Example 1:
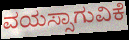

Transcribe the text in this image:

ವಯಸ್ಸಾಗುವಿಕೆ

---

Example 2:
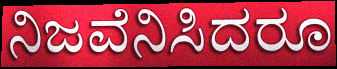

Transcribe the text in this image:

ನಿಜವೆನಿಸಿದರೂ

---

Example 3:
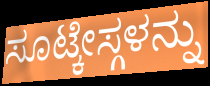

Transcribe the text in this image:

ಸೂಟ್ಕೇಸ್ಗಳನ್ನು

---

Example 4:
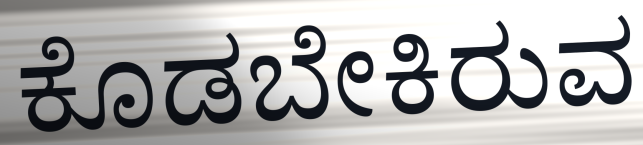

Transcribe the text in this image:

ಕೊಡಬೇಕಿರುವ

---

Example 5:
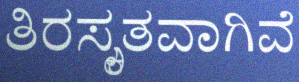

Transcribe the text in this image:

ತಿರಸ್ಕೃತವಾಗಿವೆ